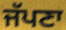
ਜੱਪਣਾ